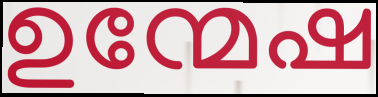
ഉന്മേഷ